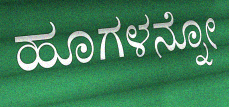
ಹೂಗಳನ್ನೋ